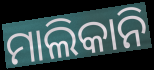
ମାଲିକାନି